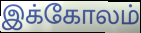
இக்கோலம்